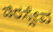
ಚಿರಸ್ಸೇವ